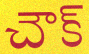
చౌక్